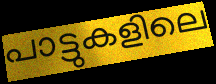
പാട്ടുകളിലെ